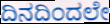
ದಿನದಿಂದಲೇ